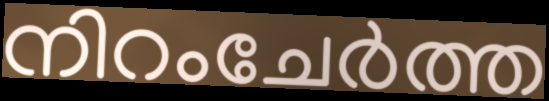
നിറംചേർത്ത